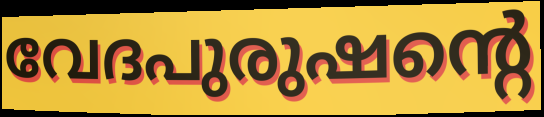
വേദപുരുഷന്റെ